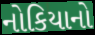
નોકિયાનો